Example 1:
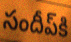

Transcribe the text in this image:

సందీప్‌కి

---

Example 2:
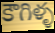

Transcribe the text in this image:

కౌగిళ్ళ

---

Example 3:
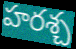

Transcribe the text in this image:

హరశ్చ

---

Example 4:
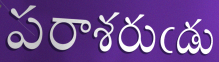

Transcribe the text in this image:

పరాశరుఁడు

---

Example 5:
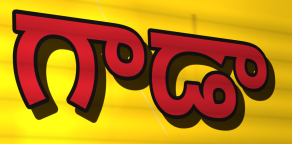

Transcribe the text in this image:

గాడా